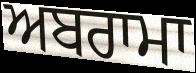
ਅਬਰਾਮਾ